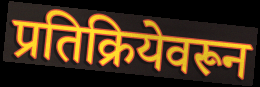
प्रतिक्रियेवरून